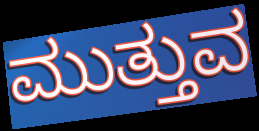
ಮುತ್ತುವ